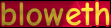
bloweth